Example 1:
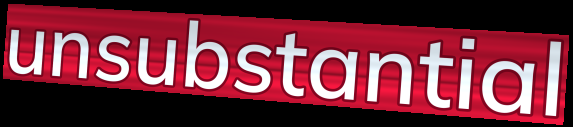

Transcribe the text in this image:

unsubstantial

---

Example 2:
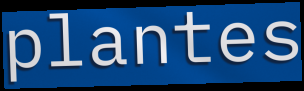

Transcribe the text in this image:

plantes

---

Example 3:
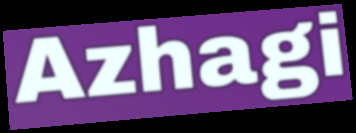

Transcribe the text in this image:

Azhagi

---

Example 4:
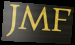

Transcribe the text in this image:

JMF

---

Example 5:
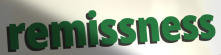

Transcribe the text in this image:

remissness